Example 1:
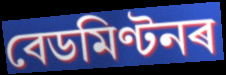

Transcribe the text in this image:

বেডমিণ্টনৰ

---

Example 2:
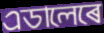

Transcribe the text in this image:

এডালেৰে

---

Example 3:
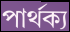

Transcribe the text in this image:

পাৰ্থক্য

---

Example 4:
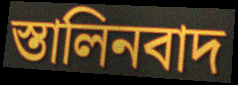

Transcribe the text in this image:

স্তালিনবাদ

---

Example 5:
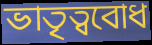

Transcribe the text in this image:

ভাতৃত্ববোধ